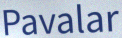
Pavalar